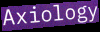
Axiology